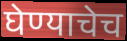
घेण्याचेच